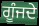
ਗੂੰਜਦੇ